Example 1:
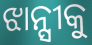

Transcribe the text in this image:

ଝାନ୍ସୀକୁ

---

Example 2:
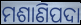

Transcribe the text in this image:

ମଶାଣିପଦା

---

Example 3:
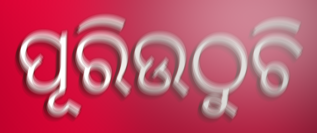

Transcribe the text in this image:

ପୂରିଉଠୁଚି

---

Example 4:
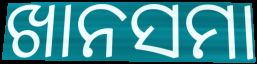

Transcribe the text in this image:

ଖାନସମା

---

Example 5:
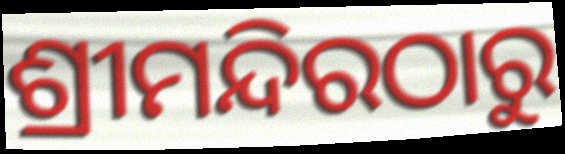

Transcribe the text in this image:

ଶ୍ରୀମନ୍ଦିରଠାରୁ